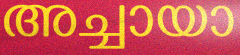
അച്ചായാ